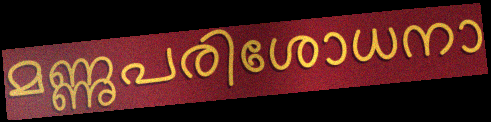
മണ്ണുപരിശോധനാ